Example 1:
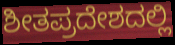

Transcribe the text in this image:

ಶೀತಪ್ರದೇಶದಲ್ಲಿ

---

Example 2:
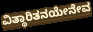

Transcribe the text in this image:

ವಿತ್ಥಾರಿತನಯೇನೇವ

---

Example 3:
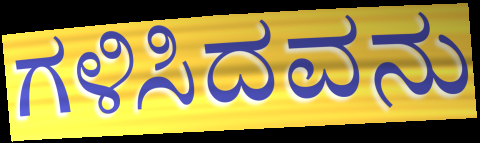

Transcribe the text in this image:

ಗಳಿಸಿದವನು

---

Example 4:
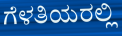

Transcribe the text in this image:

ಗೆಳತಿಯರಲ್ಲಿ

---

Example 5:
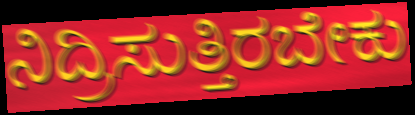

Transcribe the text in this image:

ನಿದ್ರಿಸುತ್ತಿರಬೇಕು